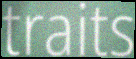
traits